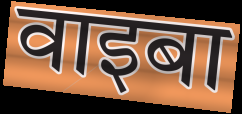
वाइबा